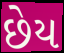
છેય